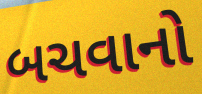
બચવાનો